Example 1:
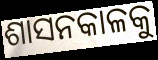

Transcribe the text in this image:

ଶାସନକାଳକୁ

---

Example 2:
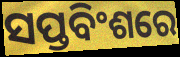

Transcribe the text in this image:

ସପ୍ତବିଂଶରେ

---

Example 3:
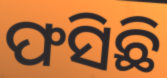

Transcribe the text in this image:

ଫସିଛି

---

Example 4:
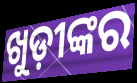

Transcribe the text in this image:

ଖୁଡ଼ୀଙ୍କର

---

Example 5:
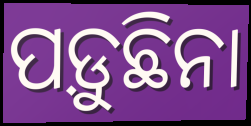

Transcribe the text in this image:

ପଡ଼ୁଛିନା